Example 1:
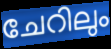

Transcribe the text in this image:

ചേറിലും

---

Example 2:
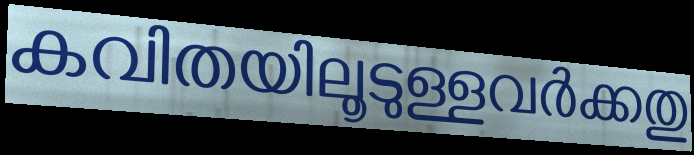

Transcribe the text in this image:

കവിതയിലൂടുള്ളവർക്കതു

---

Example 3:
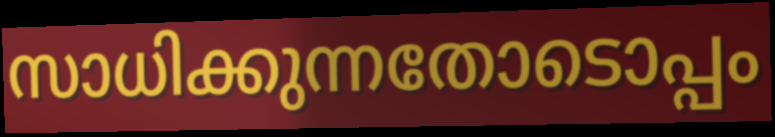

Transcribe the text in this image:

സാധിക്കുന്നതോടൊപ്പം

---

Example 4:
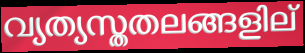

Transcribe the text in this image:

വ്യത്യസ്തതലങ്ങളില്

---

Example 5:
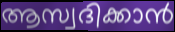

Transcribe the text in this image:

ആസ്വദിക്കാൻ